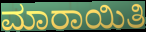
ಮಾರಾಯಿತಿ